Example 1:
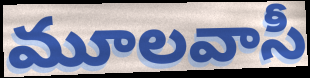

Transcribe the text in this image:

మూలవాసీ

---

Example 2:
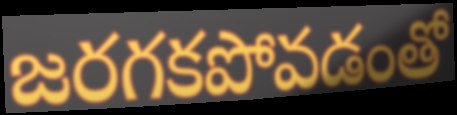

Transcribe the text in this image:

జరగకపోవడంతో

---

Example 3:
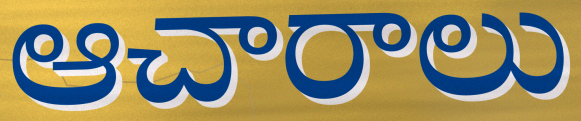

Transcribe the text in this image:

ఆచారాలు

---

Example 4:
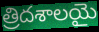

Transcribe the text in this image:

త్రిదశాలయై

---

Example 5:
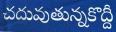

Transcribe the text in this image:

చదువుతున్నకొద్దీ